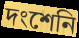
দংশেনি